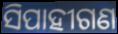
ସିପାହୀଗଣ